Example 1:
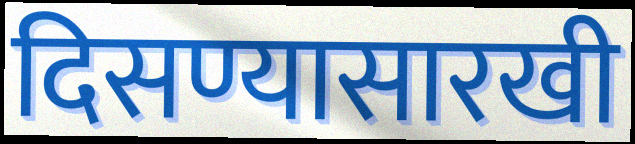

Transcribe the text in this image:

दिसण्यासारखी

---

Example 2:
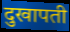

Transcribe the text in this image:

दुखापती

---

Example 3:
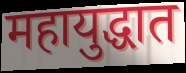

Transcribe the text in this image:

महायुद्धात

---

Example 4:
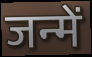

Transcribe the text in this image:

जन्में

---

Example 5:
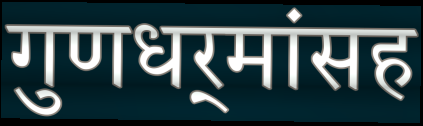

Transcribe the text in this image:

गुणधर्मांसह